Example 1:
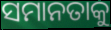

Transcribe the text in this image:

ସମାନତାକୁ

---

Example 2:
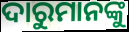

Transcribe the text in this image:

ଦାରୁମାନଙ୍କୁ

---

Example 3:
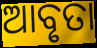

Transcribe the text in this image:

ଆବୃତା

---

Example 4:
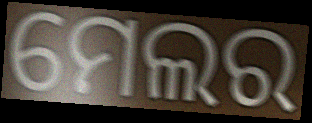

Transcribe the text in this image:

ମେଲର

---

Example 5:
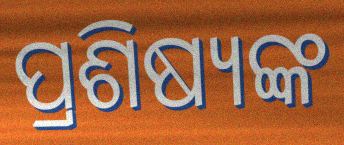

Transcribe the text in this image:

ପ୍ରଶିଷ୍ୟଙ୍କ